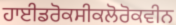
ਹਾਈਡਰੋਕਸੀਕਲੋਰੋਕਵੀਨ